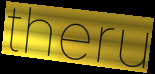
theru